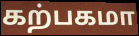
கற்பகமா